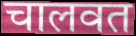
चालवत